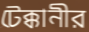
টেক্কানীর